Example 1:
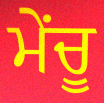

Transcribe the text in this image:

ਮੇਂਚੂ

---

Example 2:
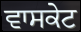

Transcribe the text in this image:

ਵਾਸਕੇਟ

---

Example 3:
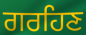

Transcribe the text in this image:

ਗਰਹਿਣ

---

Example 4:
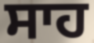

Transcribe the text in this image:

ਸਾਹ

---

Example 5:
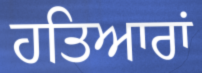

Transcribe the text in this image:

ਹਤਿਆਰਾਂ